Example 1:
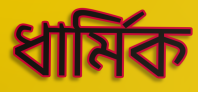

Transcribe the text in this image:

ধাৰ্মিক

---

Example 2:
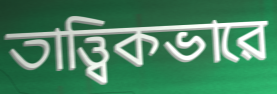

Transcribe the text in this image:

তাত্ত্বিকভাৱে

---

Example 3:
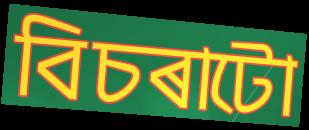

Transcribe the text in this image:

বিচৰাটো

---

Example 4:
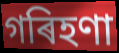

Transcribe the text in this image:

গৰিহণা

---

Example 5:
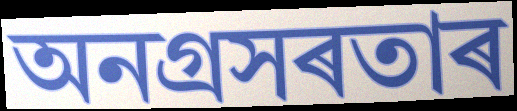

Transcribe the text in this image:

অনগ্ৰসৰতাৰ